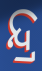
ନ୍ଦ୍ର